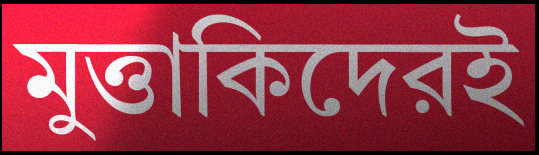
মুত্তাকিদেরই